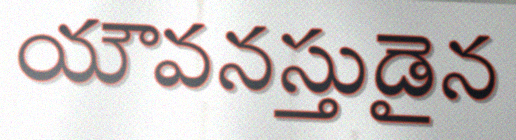
యౌవనస్తుడైన